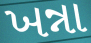
ખન્ના